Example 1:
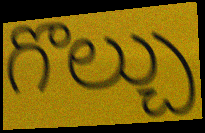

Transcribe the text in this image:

గొల్చు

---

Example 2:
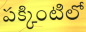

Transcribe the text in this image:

పక్కింటిలో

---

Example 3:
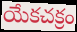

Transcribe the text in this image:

యేకచక్రం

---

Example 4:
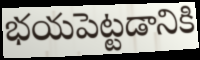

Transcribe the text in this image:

భయపెట్టడానికి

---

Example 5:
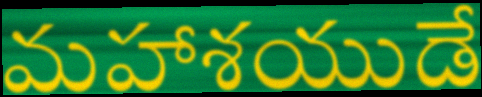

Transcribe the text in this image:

మహాశయుడే